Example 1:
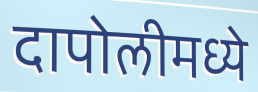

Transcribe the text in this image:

दापोलीमध्ये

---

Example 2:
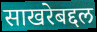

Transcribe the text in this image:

साखरेबद्दल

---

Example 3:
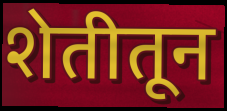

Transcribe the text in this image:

शेतीतून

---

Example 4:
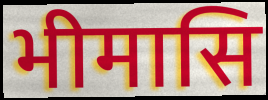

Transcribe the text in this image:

भीमासि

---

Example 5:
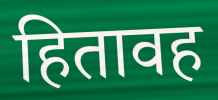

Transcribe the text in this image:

हितावह